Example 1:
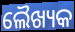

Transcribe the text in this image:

ଲୈଖ୍ୟକ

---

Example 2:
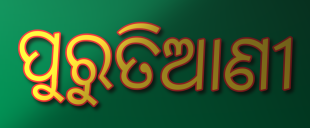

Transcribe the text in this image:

ପୁରୁତିଆଣୀ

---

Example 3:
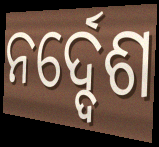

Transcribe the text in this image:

ନର୍ଦ୍ଦେଶ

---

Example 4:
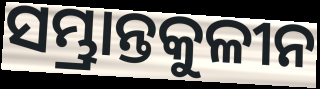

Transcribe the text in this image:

ସମ୍ଭ୍ରାନ୍ତକୁଳୀନ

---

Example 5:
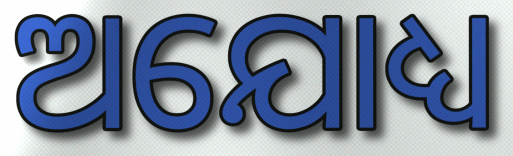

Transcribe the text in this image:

ଅଯୋଧ୍ୟ